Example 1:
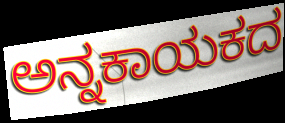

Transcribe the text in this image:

ಅನ್ನಕಾಯಕದ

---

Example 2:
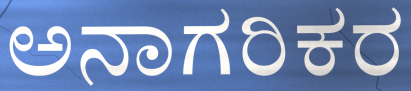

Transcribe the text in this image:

ಅನಾಗರಿಕರ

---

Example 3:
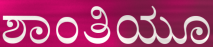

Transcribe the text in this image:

ಶಾಂತಿಯೂ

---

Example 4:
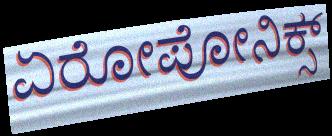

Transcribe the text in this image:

ಏರೋಪೋನಿಕ್ಸ್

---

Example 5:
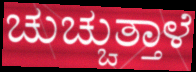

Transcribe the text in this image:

ಚುಚ್ಚುತ್ತಾಳೆ